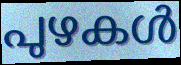
പുഴകൾ